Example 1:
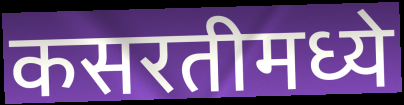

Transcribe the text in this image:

कसरतीमध्ये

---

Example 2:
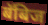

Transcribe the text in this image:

बॅबिज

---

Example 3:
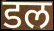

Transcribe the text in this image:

डल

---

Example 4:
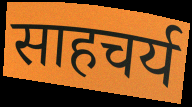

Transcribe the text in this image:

साहचर्य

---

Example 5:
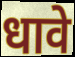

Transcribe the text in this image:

धावे